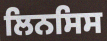
ਲਿਨਸਿਸ